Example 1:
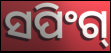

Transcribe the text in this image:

ସପିଂଗ୍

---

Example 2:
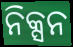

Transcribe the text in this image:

ନିକ୍ସନ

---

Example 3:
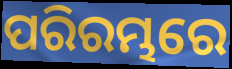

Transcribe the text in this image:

ପରିରମ୍ଭରେ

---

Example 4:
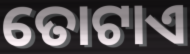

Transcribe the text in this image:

ତୋଟାଏ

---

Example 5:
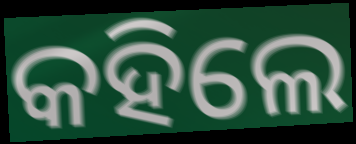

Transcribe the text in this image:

କହିଲେ